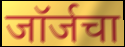
जॉर्जचा